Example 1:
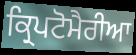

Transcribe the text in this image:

ਕ੍ਰਿਪਟੋਮੈਰੀਆ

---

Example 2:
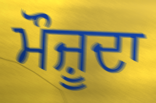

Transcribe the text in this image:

ਮੌਜ਼ੂਦਾ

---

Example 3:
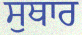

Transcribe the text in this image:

ਸੁਥਾਰ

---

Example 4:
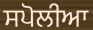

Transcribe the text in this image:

ਸਪੋਲੀਆ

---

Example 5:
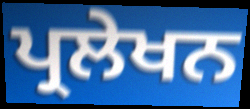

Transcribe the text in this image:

ਪ੍ਰਲੇਖਨ